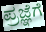
ಪ್ರಜ್ಞೆಗೆ